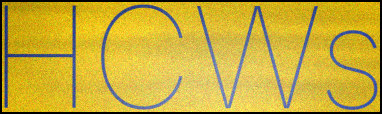
HCWs